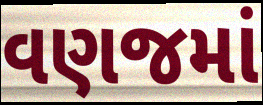
વણજમાં